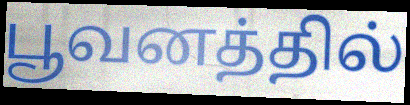
பூவனத்தில்